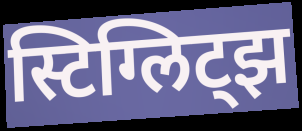
स्टिग्लिट्झ